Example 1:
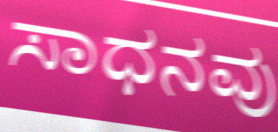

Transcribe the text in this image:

ಸಾಧನವು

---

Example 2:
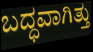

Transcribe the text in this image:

ಬದ್ಧವಾಗಿತ್ತು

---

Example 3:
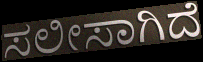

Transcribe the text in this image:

ಸಲೀಸಾಗಿದೆ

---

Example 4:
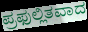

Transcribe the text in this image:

ಪ್ರಫುಲ್ಲಿತವಾದ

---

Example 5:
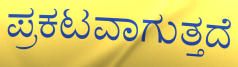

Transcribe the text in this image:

ಪ್ರಕಟವಾಗುತ್ತದೆ